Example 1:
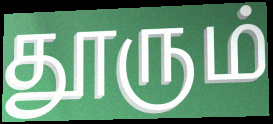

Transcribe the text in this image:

தூரும்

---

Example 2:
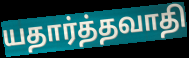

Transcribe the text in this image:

யதார்த்தவாதி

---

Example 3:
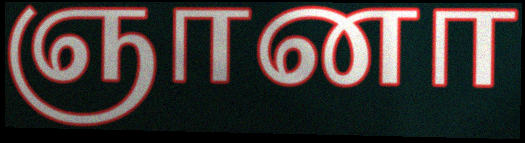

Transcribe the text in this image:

ஞானா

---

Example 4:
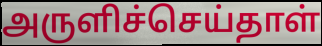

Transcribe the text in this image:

அருளிச்செய்தாள்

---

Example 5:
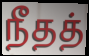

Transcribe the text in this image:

நீதத்